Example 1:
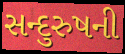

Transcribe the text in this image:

સન્દુરુષની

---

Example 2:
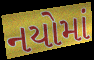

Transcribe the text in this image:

નયોમાં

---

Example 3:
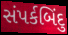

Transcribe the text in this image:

સંપર્કબિંદુ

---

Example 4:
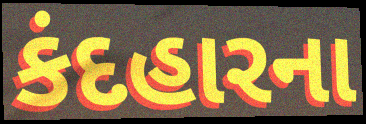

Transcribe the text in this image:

કંદહારના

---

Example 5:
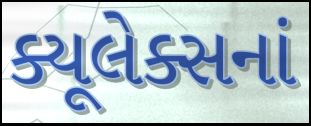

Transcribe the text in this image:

ક્યૂલેક્સનાં